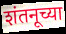
शंतनूच्या